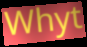
Whyt